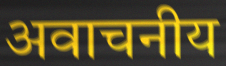
अवाचनीय